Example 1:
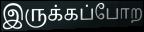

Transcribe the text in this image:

இருக்கப்போற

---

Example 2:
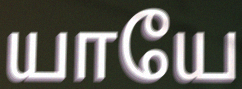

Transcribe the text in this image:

யாயே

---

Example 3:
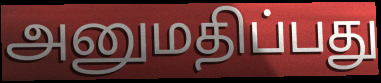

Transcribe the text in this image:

அனுமதிப்பது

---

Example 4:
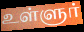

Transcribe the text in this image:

உள்ளுர்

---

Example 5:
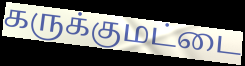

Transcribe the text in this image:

கருக்குமட்டை